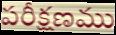
పరీక్షణము